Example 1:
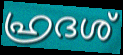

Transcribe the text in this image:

ഹ്രദശ്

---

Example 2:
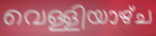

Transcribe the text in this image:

വെള്ളിയാഴ്‌ച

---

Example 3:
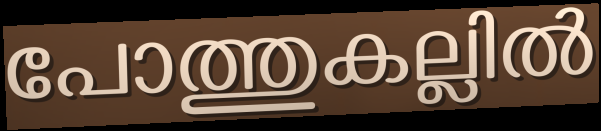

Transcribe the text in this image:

പോത്തുകല്ലിൽ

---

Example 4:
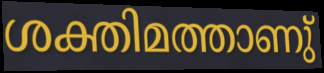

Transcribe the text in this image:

ശക്തിമത്താണു്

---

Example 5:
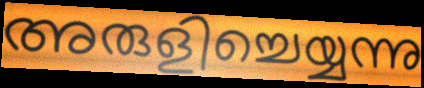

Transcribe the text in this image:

അരുളിച്ചെയ്യന്നു